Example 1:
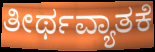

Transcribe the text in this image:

ತೀರ್ಥವ್ಯಾತಕೆ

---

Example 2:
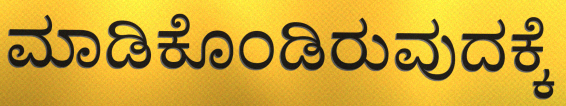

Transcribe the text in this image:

ಮಾಡಿಕೊಂಡಿರುವುದಕ್ಕೆ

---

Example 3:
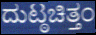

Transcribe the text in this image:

ದುಟ್ಠಚಿತ್ತಂ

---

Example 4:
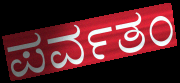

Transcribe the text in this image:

ಪರ್ವತಂ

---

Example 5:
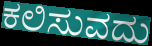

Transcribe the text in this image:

ಕಲಿಸುವದು